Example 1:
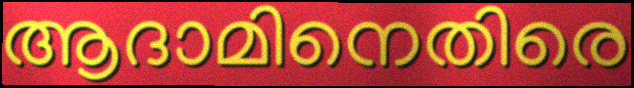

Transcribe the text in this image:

ആദാമിനെതിരെ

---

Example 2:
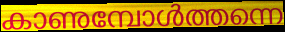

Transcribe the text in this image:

കാണുമ്പോൾത്തന്നെ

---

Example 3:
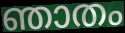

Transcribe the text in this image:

ഞാതം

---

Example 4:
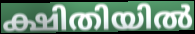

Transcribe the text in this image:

ക്ഷിതിയിൽ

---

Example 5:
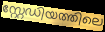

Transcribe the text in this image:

സ്റ്റേഡിയത്തിലെ